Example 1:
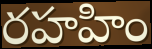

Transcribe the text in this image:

రహహిం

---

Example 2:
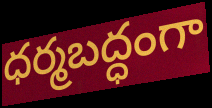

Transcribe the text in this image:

ధర్మబద్ధంగా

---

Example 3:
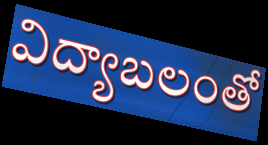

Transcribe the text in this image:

విద్యాబలంతో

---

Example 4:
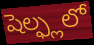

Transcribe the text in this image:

షెల్ఫ్లలో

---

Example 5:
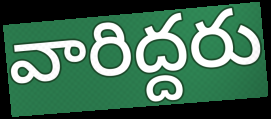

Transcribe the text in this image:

వారిద్దరు